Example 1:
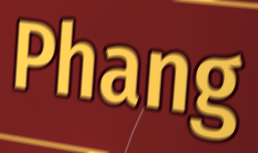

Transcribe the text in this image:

Phang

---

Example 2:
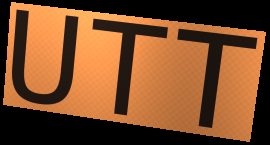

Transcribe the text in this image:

UTT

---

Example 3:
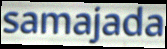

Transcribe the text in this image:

samajada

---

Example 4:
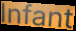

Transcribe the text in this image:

Infant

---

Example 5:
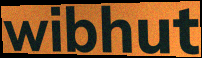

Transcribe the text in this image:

wibhut